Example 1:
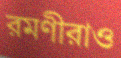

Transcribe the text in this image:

রমণীরাও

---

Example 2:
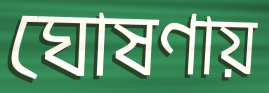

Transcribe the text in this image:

ঘোষণায়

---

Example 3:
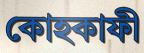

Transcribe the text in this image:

কোহকাফী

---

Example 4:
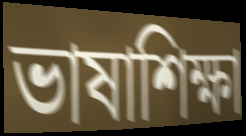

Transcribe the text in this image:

ভাষাশিক্ষা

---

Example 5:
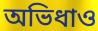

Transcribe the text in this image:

অভিধাও